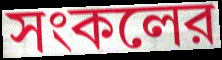
সংকলের